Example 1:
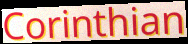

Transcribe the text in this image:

Corinthian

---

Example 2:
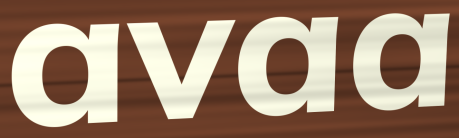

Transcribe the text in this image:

avaa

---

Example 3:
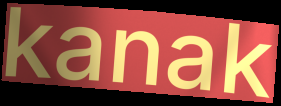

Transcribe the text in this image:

kanak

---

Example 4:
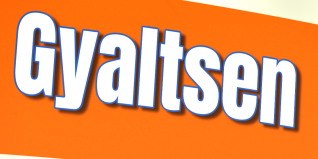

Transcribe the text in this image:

Gyaltsen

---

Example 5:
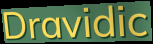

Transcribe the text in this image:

Dravidic